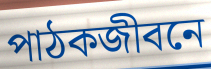
পাঠকজীবনে